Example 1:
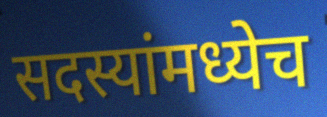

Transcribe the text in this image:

सदस्यांमध्येच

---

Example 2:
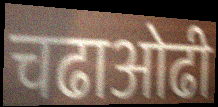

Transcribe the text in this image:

चढाओढी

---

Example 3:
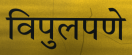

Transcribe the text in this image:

विपुलपणे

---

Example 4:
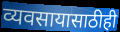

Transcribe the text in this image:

व्यवसायासाठीही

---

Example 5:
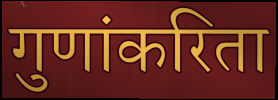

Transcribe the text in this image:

गुणांकरिता